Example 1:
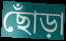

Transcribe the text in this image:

ছোঁড়া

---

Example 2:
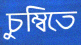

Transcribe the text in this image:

চুম্বিতে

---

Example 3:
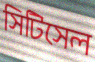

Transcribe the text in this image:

সিটিসেল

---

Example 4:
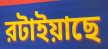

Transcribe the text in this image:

রটাইয়াছে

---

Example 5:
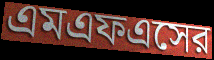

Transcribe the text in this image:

এমএফএসের